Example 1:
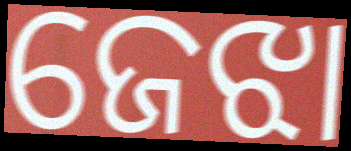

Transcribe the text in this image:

ଜେଝା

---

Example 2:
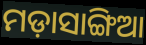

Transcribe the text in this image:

ମଡ଼ାସାଙ୍ଗିଆ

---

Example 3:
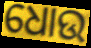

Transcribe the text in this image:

ଧୋଉ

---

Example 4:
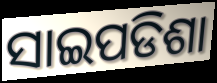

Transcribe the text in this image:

ସାଇପଡିଶା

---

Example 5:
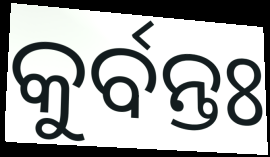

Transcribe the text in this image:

କୁର୍ବନ୍ତଃ